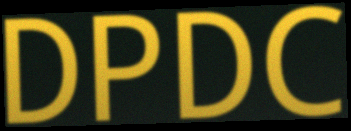
DPDC